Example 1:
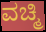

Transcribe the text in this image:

ವಚ್ಮಿ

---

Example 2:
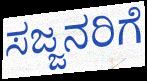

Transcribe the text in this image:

ಸಜ್ಜನರಿಗೆ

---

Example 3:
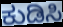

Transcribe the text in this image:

ಕುಡಿಸಿ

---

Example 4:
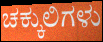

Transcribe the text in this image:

ಚಕ್ಕುಲಿಗಳು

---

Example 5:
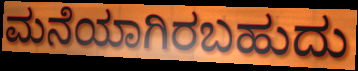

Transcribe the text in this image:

ಮನೆಯಾಗಿರಬಹುದು